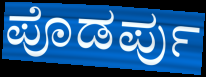
ಪೊಡರ್ಪು